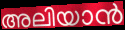
അലിയാൻ